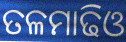
ତଳମାଢିଓ